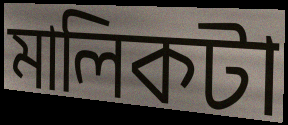
মালিকটা